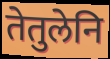
तेतुलेनि